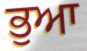
ਭੁਆ